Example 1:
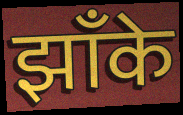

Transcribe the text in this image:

झाँके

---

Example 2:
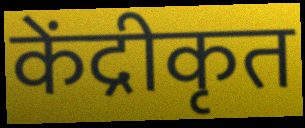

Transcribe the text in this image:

केंद्रीकृत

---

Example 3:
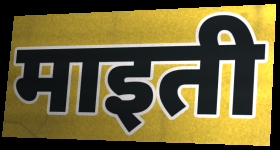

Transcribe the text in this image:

माइती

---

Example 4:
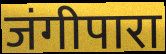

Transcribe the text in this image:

जंगीपारा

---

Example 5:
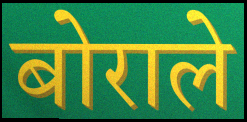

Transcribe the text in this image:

बोराले